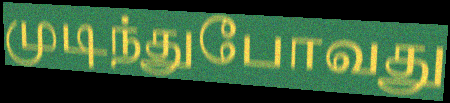
முடிந்துபோவது